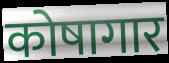
कोषागार